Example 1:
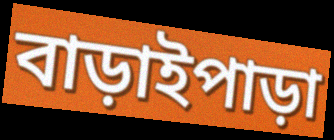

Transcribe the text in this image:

বাড়াইপাড়া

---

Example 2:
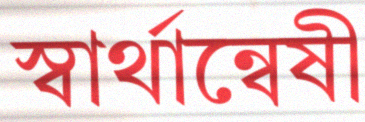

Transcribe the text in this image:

স্বার্থান্বেষী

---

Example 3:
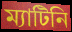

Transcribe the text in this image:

ম্যাটিনি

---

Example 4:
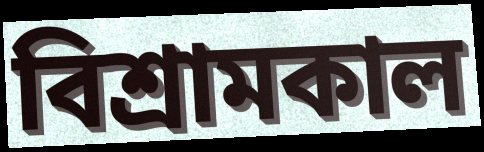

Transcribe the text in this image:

বিশ্রামকাল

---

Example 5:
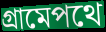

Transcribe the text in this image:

গ্রামেপথে